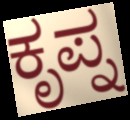
ಕೃಪ್ನ